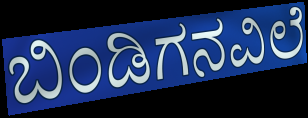
ಬಿಂಡಿಗನವಿಲೆ